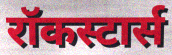
रॉकस्टार्स